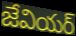
జేవియర్